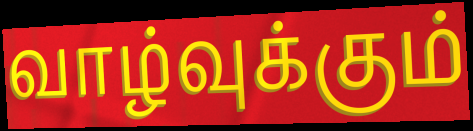
வாழ்வுக்கும்